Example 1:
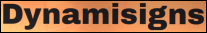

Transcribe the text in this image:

Dynamisigns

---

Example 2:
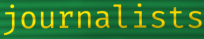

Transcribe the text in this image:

journalists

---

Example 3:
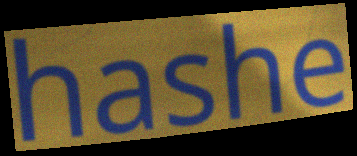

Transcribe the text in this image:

hashe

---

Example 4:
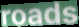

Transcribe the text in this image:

roads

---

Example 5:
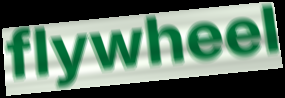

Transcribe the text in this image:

flywheel